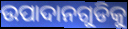
ଉପାଦାନଗୁଡିକୁ